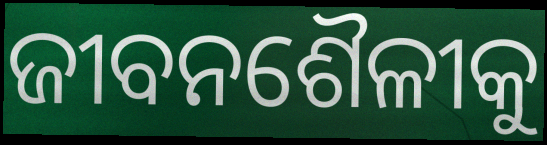
ଜୀବନଶୈଳୀକୁ